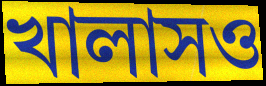
খালাসও